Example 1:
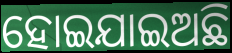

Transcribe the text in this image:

ହୋଇଯାଇଅଛି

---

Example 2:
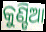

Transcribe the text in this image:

କୁଣ୍ଡିଆ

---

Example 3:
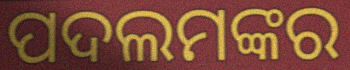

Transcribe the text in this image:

ପଦଲମଙ୍କର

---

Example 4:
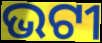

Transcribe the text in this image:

ଭଟୀ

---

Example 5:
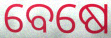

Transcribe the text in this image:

ବେଷେ